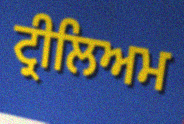
ਟ੍ਰੀਲਿਅਮ